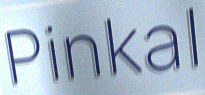
Pinkal